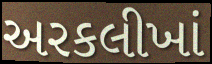
અરકલીખાં